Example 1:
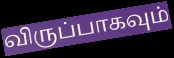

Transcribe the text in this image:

விருப்பாகவும்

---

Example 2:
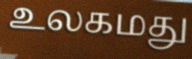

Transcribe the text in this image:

உலகமது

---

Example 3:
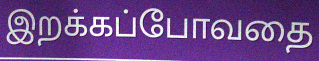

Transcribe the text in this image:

இறக்கப்போவதை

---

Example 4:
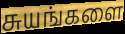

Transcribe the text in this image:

சுயங்களை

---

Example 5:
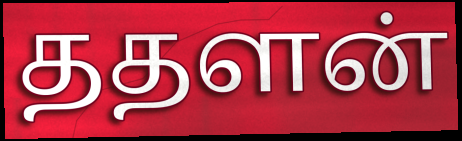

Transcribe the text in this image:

ததளன்